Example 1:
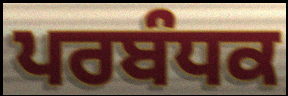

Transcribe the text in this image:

ਪਰਬੰਧਕ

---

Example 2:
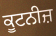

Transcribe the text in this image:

ਕੂਟਨੀਜ਼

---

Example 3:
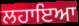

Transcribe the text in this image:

ਲਹਾਇਆ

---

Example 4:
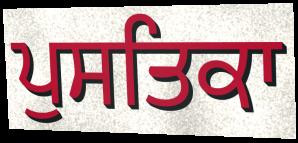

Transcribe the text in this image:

ਪੁਸਤਿਕਾ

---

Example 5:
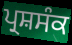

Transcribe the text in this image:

ਪ੍ਰਸ਼ਸੰਕ